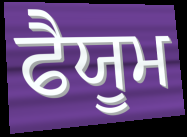
ਫੈਯੂਮ